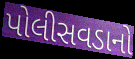
પોલીસવડાનો